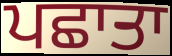
ਪਛਾਤਾ